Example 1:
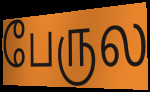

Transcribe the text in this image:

பேருல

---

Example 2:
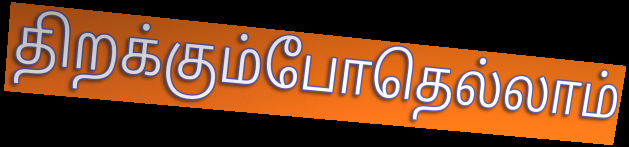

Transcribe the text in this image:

திறக்கும்போதெல்லாம்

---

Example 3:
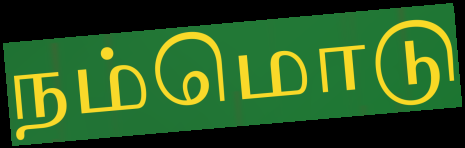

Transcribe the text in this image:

நம்மொடு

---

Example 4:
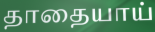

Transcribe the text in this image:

தாதையாய்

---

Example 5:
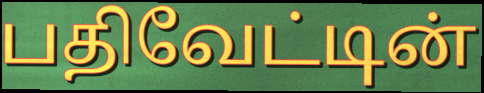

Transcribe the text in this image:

பதிவேட்டின்